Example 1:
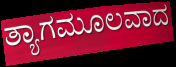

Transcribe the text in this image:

ತ್ಯಾಗಮೂಲವಾದ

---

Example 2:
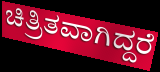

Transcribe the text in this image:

ಚಿತ್ರಿತವಾಗಿದ್ದರೆ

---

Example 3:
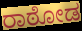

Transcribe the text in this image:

ರಾಠೋಡ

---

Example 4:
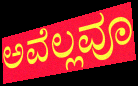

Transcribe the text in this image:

ಅವೆಲ್ಲವೂ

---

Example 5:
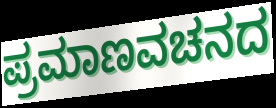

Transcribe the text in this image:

ಪ್ರಮಾಣವಚನದ